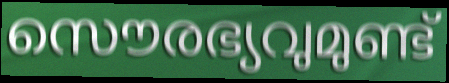
സൌരഭ്യവുമുണ്ട്